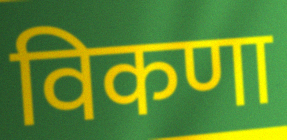
विकणा